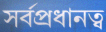
সর্বপ্রধানত্ব